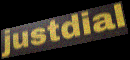
justdial